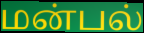
மன்பல்